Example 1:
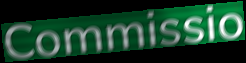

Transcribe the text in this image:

Commissio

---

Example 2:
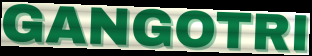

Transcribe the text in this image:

GANGOTRI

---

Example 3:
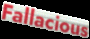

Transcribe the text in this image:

Fallacious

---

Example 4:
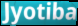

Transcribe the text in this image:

Jyotiba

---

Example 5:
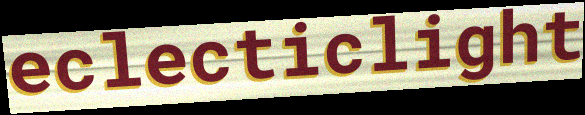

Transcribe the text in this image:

eclecticlight